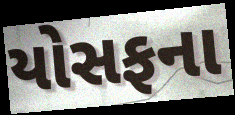
યોસફના